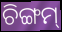
ଚିଙ୍ଗମ୍